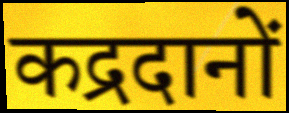
कद्रदानों